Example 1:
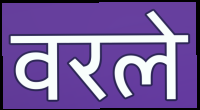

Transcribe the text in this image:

वरले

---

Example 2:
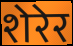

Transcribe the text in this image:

शेरेर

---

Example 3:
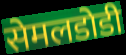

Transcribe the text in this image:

सेमलडोडी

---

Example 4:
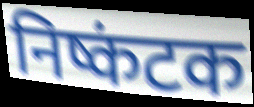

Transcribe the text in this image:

निष्कंटक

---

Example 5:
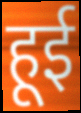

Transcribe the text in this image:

हूई